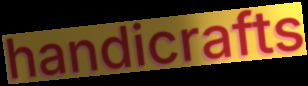
handicrafts